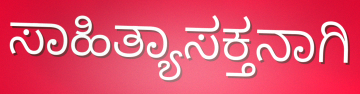
ಸಾಹಿತ್ಯಾಸಕ್ತನಾಗಿ